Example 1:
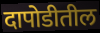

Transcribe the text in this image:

दापोडीतील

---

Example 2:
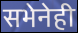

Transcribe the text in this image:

सभेनेही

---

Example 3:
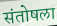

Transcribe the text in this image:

संतोषला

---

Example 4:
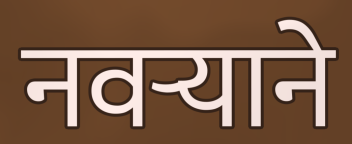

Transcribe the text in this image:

नवर्‍याने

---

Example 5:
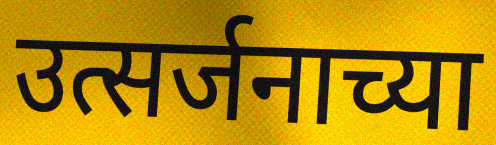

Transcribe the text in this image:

उत्सर्जनाच्या